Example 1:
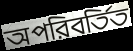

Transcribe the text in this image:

অপরিবর্তিত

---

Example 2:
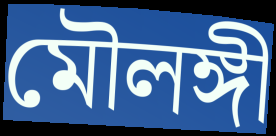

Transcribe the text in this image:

মৌলঙ্গী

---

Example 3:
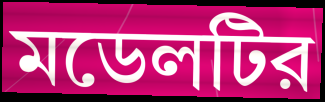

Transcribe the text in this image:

মডেলটির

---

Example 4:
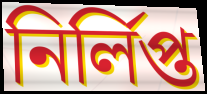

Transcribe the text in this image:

নির্লিপ্ত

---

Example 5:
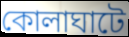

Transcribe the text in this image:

কোলাঘাটে